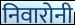
निवारोनी